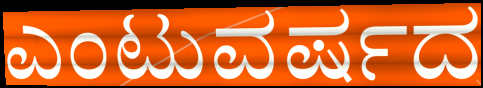
ಎಂಟುವರ್ಷದ